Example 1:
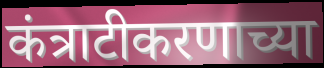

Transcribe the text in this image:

कंत्राटीकरणाच्या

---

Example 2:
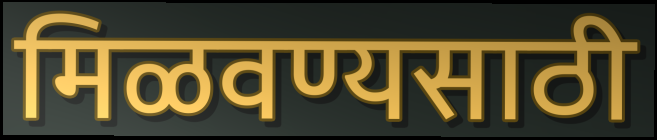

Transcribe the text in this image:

मिळवण्यसाठी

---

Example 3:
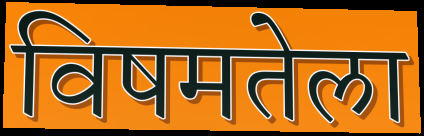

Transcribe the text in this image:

विषमतेला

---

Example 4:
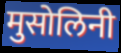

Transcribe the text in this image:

मुसोलिनी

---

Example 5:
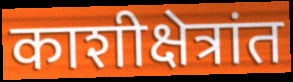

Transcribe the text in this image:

काशीक्षेत्रांत